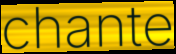
chante